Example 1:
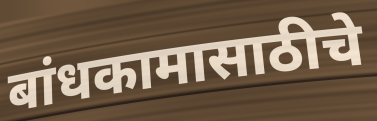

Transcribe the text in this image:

बांधकामासाठीचे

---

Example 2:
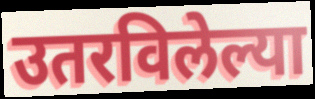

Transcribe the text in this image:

उतरविलेल्या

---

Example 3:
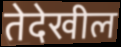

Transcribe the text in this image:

तेदेखील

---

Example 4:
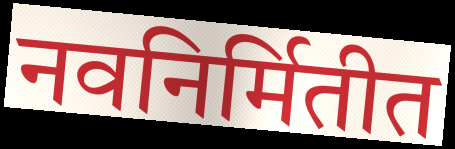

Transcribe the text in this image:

नवनिर्मितीत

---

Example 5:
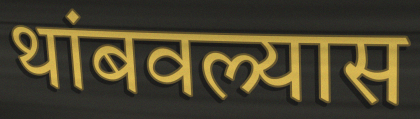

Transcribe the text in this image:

थांबवल्यास